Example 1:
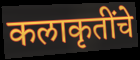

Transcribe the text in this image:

कलाकृतींचे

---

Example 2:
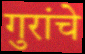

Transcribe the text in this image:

गुरांचे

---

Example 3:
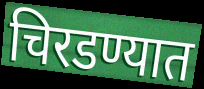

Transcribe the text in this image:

चिरडण्यात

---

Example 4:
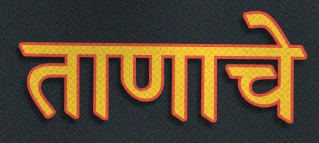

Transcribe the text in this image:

ताणाचे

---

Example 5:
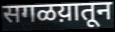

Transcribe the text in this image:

सगळय़ातून